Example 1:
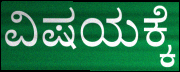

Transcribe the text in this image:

ವಿಷಯಕ್ಕೆ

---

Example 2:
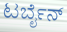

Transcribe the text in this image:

ಟರ್ಬೈನ್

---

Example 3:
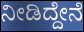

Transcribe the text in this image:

ನೀಡಿದ್ದೇನೆ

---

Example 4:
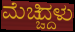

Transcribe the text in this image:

ಮೆಚ್ಚಿದ್ದಳು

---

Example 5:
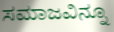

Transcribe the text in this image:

ಸಮಾಜವಿನ್ನೂ